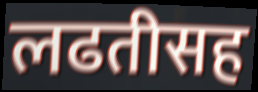
लढतीसह